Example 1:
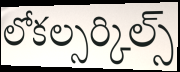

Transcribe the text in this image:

లోకల్సర్కిల్స్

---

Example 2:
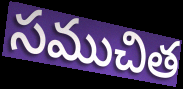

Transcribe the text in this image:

సముచిత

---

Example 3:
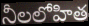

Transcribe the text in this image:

నీలలోహిత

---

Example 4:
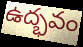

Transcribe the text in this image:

ఉద్భవం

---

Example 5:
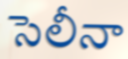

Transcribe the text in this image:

సెలీనా